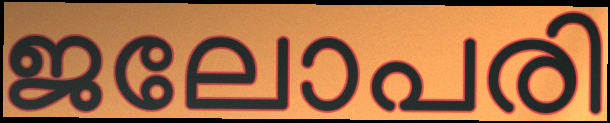
ജലോപരി